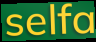
selfa